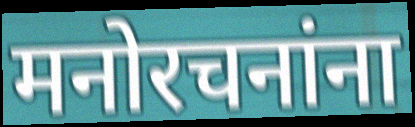
मनोरचनांना